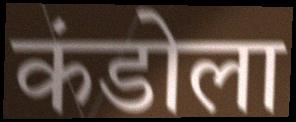
कंडोला